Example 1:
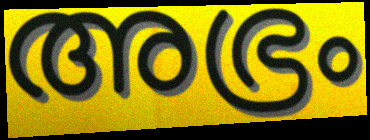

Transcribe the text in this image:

അഭ്രം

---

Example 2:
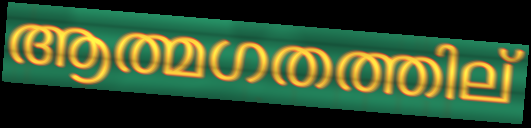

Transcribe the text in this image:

ആത്മഗതത്തില്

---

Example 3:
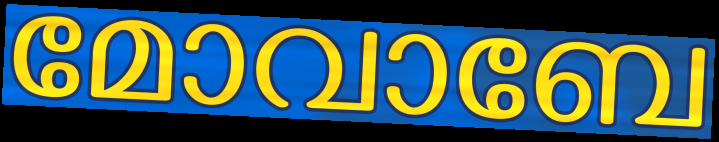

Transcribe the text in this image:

മോവാബേ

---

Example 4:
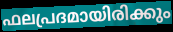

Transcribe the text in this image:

ഫലപ്രദമായിരിക്കും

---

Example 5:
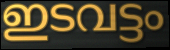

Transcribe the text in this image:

ഇടവട്ടം